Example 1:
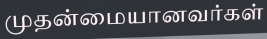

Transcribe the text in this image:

முதன்மையானவர்கள்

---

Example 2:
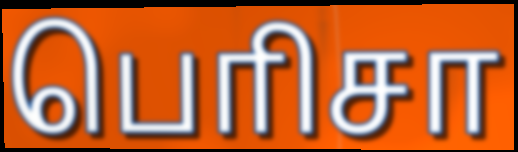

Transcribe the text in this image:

பெரிசா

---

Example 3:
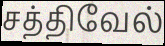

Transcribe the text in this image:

சத்திவேல்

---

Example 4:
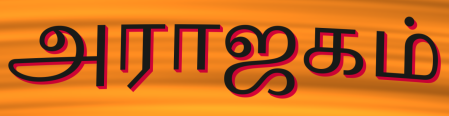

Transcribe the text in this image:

அராஜகம்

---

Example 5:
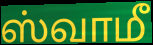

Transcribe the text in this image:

ஸ்வாமீ